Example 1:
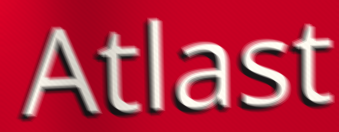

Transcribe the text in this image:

Atlast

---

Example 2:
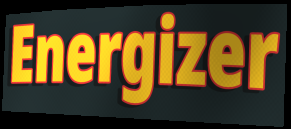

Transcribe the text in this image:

Energizer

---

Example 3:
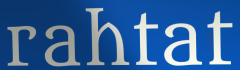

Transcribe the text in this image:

rahtat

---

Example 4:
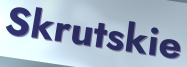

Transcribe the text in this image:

Skrutskie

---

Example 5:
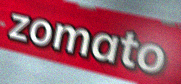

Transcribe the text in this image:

zomato